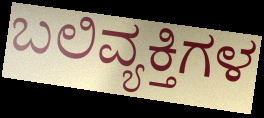
ಬಲಿವ್ಯಕ್ತಿಗಳ